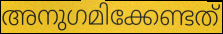
അനുഗമിക്കേണ്ടത്